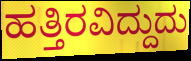
ಹತ್ತಿರವಿದ್ದುದು